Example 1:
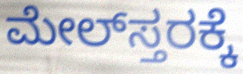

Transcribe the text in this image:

ಮೇಲ್‌ಸ್ತರಕ್ಕೆ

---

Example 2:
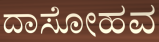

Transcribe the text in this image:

ದಾಸೋಹವ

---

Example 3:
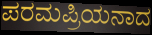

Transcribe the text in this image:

ಪರಮಪ್ರಿಯನಾದ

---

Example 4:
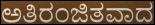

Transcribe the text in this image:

ಅತಿರಂಜಿತವಾದ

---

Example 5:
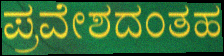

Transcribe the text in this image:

ಪ್ರವೇಶದಂತಹ